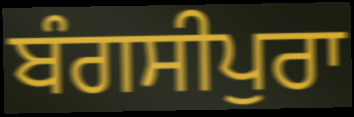
ਬੰਗਸੀਪੁਰਾ